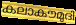
കലാകൗമുദി